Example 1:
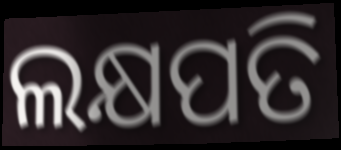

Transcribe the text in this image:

ଲକ୍ଷପତି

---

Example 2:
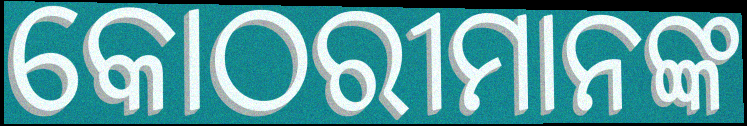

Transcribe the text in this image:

କୋଠରୀମାନଙ୍କ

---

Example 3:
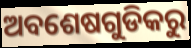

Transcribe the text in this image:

ଅବଶେଷଗୁଡିକରୁ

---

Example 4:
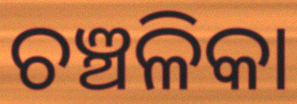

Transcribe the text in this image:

ଚଞ୍ଚଳିକା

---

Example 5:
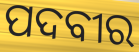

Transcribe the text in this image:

ପଦବୀର